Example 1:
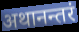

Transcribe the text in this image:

अथानन्तरं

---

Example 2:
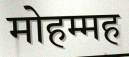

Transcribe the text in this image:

मोहम्मह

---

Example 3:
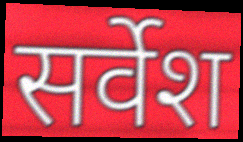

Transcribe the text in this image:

सर्वेश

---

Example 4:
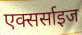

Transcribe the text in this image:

एक्सर्साइज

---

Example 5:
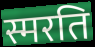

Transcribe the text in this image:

स्मरति